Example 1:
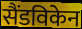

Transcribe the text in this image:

सैंडविकेन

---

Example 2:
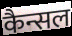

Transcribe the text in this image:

कैन्सल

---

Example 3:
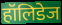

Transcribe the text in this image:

हॉलिडेज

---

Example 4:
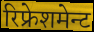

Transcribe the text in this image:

रिफ्रेशमेन्ट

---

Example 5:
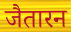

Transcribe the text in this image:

जैतारन